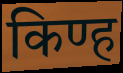
किण्ह